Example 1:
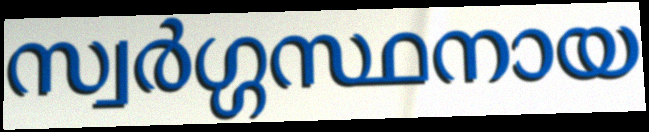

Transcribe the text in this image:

സ്വർഗ്ഗസ്ഥനായ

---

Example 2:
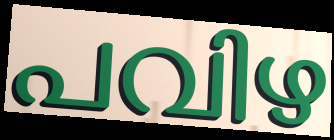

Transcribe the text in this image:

പവിഴ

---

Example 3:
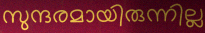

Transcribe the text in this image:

സുന്ദരമായിരുന്നില്ല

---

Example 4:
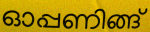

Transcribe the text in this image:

ഓപ്പണിങ്ങ്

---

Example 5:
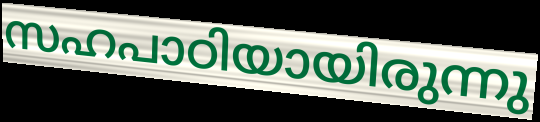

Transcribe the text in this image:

സഹപാഠിയായിരുന്നു